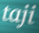
taji